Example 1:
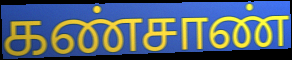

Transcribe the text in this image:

கண்சாண்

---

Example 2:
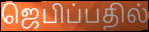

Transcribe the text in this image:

ஜெபிப்பதில்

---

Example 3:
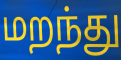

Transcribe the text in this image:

மறந்து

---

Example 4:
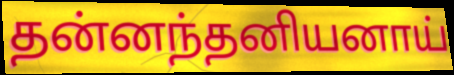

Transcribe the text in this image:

தன்னந்தனியனாய்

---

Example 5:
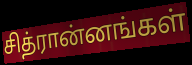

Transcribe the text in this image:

சித்ரான்னங்கள்